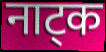
नाट्क